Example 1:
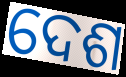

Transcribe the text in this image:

ଦେଶ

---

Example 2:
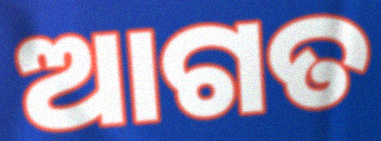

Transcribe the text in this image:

ଆଗତ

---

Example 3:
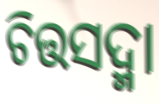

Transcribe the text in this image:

ଚିତ୍ତସଦ୍ମା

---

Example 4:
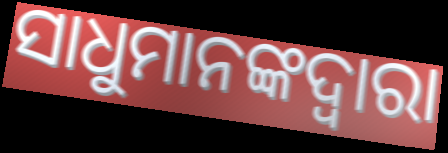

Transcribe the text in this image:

ସାଧୁମାନଙ୍କଦ୍ଵାରା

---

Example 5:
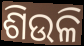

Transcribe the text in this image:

ଶିଉଳି